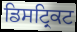
ਡਿਸਟ੍ਰਿਕਟ